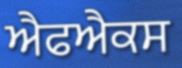
ਐਫਐਕਸ